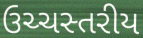
ઉચ્ચસ્તરીય